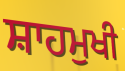
ਸ਼ਾਹਮੁਖੀ